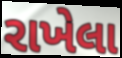
રાખેલા